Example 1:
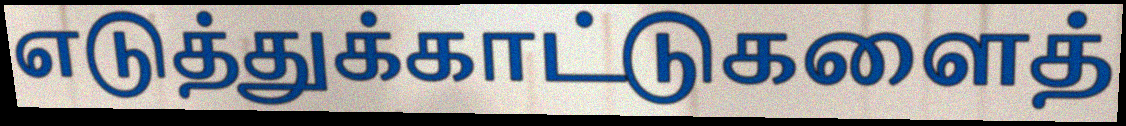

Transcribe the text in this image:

எடுத்துக்காட்டுகளைத்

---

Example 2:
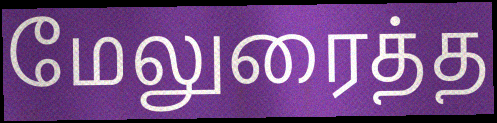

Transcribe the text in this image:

மேலுரைத்த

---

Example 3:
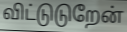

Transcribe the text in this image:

விட்டுடுறேன்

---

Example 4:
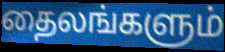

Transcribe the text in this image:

தைலங்களும்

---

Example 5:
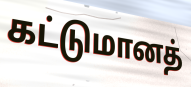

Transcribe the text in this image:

கட்டுமானத்